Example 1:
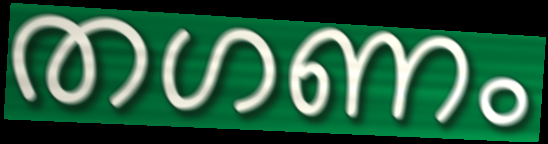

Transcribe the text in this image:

തഗണം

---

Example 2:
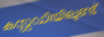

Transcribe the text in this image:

കസ്റ്റഡിയിലുണ്ട്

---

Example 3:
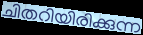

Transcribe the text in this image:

ചിതറിയിരിക്കുന്ന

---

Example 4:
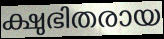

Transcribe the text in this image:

ക്ഷുഭിതരായ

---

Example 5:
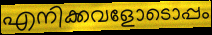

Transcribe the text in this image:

എനിക്കവളോടൊപ്പം